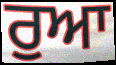
ਰੁਆ